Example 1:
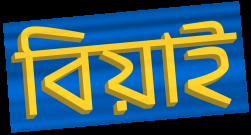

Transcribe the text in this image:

বিয়াই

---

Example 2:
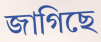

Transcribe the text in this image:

জাগিছে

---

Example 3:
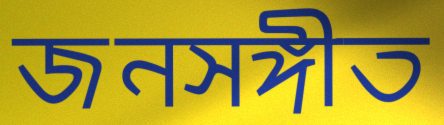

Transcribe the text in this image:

জনসঙ্গীত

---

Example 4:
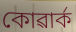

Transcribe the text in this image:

কোৱাৰ্ক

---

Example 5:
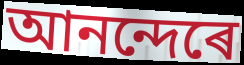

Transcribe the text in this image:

আনন্দেৰে